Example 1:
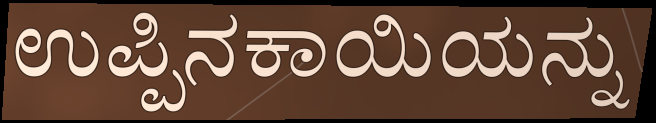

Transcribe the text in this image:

ಉಪ್ಪಿನಕಾಯಿಯನ್ನು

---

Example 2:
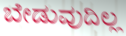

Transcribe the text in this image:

ಬೇಡುವುದಿಲ್ಲ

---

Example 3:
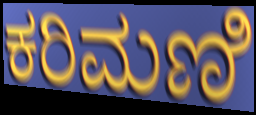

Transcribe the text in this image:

ಕರಿಮಣಿ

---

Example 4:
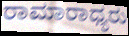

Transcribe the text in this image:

ರಾಮಾರಾಧ್ಯರು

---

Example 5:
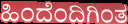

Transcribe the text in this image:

ಹಿಂದೆಂದಿಗಿಂತ